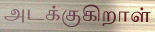
அடக்குகிறாள்